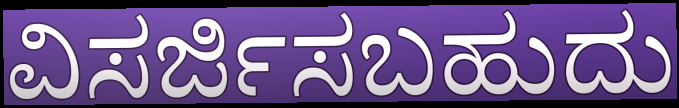
ವಿಸರ್ಜಿಸಬಹುದು